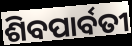
ଶିବପାର୍ବତୀ